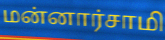
மன்னார்சாமி